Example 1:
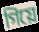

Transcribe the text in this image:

গিয়ে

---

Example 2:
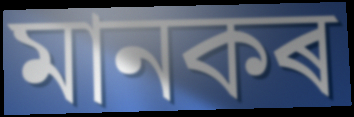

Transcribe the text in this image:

মানকৰ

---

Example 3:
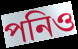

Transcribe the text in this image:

পনিও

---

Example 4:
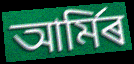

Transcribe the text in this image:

আৰ্মিৰ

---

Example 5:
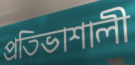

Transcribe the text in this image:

প্ৰতিভাশালী